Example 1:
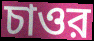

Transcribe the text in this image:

চাওর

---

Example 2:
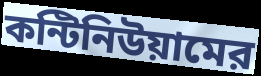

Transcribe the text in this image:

কন্টিনিউয়ামের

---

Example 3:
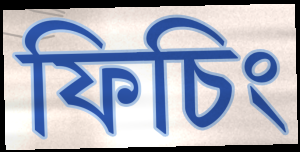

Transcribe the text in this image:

ফিচিং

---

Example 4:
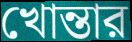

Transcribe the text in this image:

খোন্তার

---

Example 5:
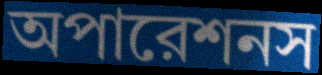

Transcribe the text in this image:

অপারেশনস